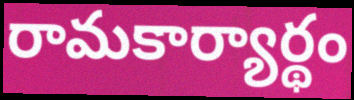
రామకార్యార్థం